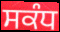
ਸਕੰਧ